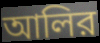
আলির